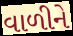
વાળીને